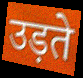
उड़ते